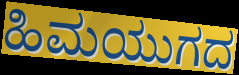
ಹಿಮಯುಗದ